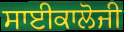
ਸਾਈਕਾਲੋਜੀ